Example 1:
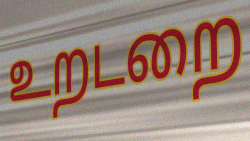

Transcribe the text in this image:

உறடறை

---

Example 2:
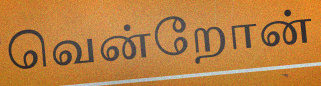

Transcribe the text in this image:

வென்றோன்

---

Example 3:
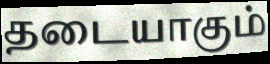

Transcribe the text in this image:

தடையாகும்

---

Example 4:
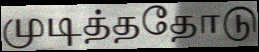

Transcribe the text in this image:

முடித்ததோடு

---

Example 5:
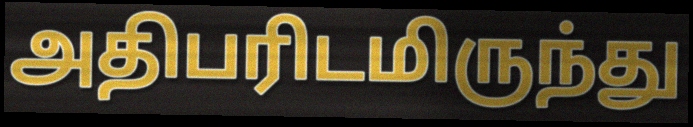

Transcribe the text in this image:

அதிபரிடமிருந்து